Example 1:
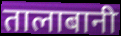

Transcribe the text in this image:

तालाबानी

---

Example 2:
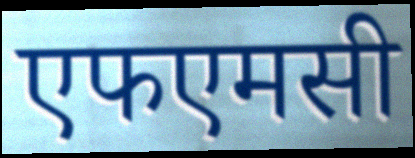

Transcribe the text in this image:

एफएमसी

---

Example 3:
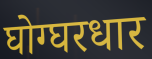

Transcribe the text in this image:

घोग्घरधार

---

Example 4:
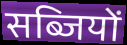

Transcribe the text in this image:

सब्जियों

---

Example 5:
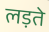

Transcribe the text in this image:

लड़ते